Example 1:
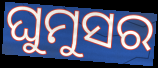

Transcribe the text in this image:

ଘୁମୁସର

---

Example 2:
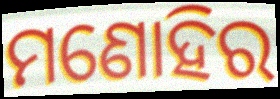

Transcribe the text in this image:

ମଣୋହିର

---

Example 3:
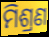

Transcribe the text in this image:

ମିଶ୍ରଣ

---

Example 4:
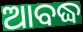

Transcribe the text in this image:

ଆବଦ୍ଧ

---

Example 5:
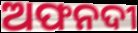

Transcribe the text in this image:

ଅଫନଦୀ